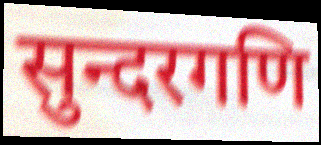
सुन्दरगणि